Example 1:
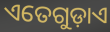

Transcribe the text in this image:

ଏତେଗୁଡ଼ାଏ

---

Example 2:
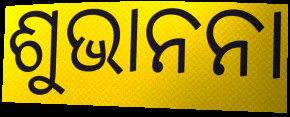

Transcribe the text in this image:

ଶୁଭାନନା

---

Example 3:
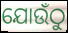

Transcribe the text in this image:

ଯୋଉଁଠୁ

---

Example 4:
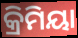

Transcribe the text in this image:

କ୍ରିମିୟା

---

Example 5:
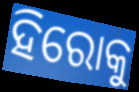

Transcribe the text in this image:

ହିରୋକୁ